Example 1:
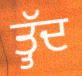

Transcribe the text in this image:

ਤ੍ਤੱਦ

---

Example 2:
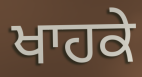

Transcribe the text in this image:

ਖਾਹਕੇ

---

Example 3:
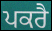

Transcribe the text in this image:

ਪਕਰੈ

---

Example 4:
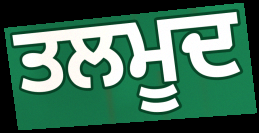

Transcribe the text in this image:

ਤਲਮੂਦ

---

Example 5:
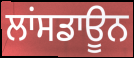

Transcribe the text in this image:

ਲਾਂਸਡਾਊਨ